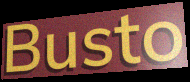
Busto